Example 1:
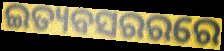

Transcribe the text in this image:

ଇତ୍ୟବସରରରେ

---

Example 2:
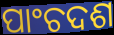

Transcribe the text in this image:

ପାଂଚଦଶ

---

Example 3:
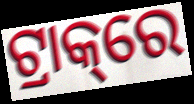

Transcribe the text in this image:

ଟ୍ରାକ୍‌ରେ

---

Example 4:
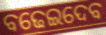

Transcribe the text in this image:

ବଢେଇଦେବ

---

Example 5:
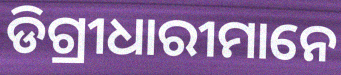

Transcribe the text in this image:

ଡିଗ୍ରୀଧାରୀମାନେ